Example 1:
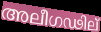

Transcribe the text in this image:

അലീഗഢില്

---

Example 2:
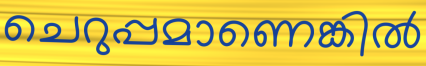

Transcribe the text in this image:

ചെറുപ്പമാണെങ്കിൽ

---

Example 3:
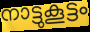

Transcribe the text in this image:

നാട്ടുകൂട്ടം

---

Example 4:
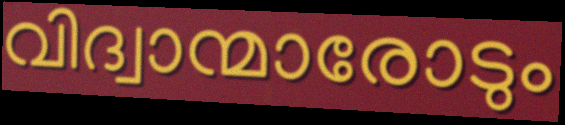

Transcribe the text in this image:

വിദ്വാന്മാരോടും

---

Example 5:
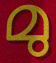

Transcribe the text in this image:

മു